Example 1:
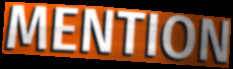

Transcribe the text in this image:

MENTION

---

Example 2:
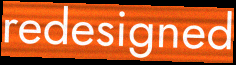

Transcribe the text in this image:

redesigned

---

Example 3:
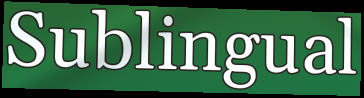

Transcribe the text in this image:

Sublingual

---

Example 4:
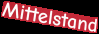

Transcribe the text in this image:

Mittelstand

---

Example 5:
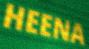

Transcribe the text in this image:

HEENA